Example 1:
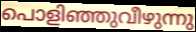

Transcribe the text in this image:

പൊളിഞ്ഞുവീഴുന്നു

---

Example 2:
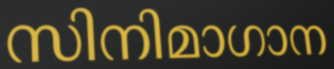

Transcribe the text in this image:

സിനിമാഗാന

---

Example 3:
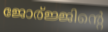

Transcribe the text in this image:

ജോര്ജ്ജിന്റെ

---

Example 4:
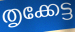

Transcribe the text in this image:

തൃക്കേട്ട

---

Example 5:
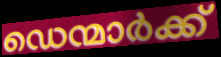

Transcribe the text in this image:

ഡെന്മാർക്ക്